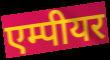
एम्पीयर